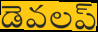
డెవలప్